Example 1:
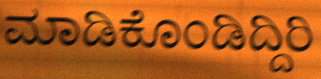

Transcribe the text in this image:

ಮಾಡಿಕೊಂಡಿದ್ದಿರಿ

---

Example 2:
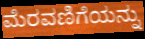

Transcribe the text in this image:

ಮೆರವಣಿಗೆಯನ್ನು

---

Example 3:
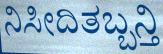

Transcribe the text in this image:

ನಿಸೀದಿತಬ್ಬನ್ತಿ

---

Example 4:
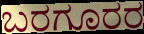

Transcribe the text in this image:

ಬರಗೂರರ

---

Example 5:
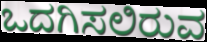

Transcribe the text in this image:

ಒದಗಿಸಲಿರುವ